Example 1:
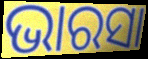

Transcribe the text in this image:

ଭାରସା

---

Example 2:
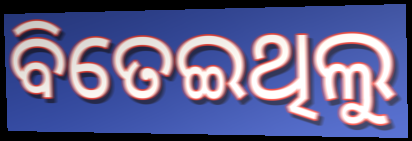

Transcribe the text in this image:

ବିତେଇଥିଲୁ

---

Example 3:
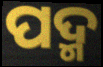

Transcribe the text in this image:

ପଦ୍ମ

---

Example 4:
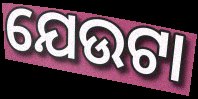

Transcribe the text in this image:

ଯେଉଟା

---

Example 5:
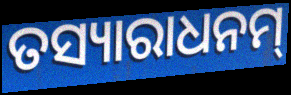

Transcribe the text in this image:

ତସ୍ୟାରାଧନମ୍